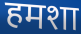
हमशा